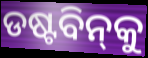
ଡଷ୍ଟବିନ୍‌କୁ